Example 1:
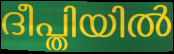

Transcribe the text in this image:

ദീപ്തിയിൽ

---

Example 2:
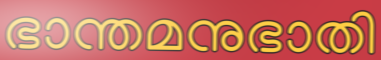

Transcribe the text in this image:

ഭാന്തമനുഭാതി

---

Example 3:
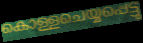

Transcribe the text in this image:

കൊള്ളചെയ്യപ്പെട്ടു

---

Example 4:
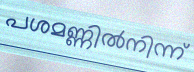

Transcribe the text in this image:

പശമണ്ണിൽനിന്ന്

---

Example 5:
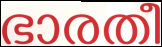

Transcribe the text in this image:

ഭാരതീ